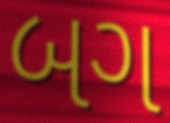
બગ